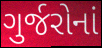
ગુર્જરોનાં